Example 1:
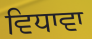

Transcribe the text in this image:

ਵਿਧਾਵਾ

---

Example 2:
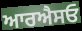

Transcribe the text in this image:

ਆਰਐਸਓ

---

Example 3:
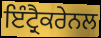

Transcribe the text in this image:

ਇੰਟ੍ਰੈਕਰੇਨਲ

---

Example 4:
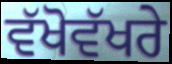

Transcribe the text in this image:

ਵੱਖੋਵੱਖਰੇ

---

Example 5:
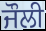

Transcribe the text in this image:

ਜੌਲੀ